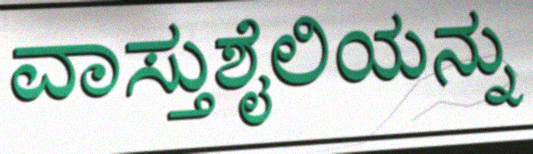
ವಾಸ್ತುಶೈಲಿಯನ್ನು